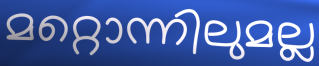
മറ്റൊന്നിലുമല്ല